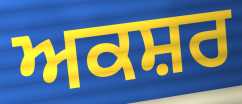
ਅਕਸ਼ਰ